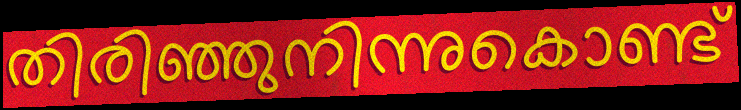
തിരിഞ്ഞുനിന്നുകൊണ്ട്